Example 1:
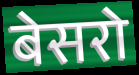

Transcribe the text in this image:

बेसरो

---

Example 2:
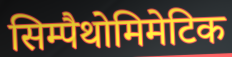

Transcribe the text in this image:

सिम्पैथोमिमेटिक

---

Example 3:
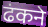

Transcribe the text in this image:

ढंकने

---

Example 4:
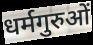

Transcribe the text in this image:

धर्मगुरुओं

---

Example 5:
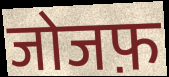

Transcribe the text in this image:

जोजफ़